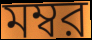
মম্বর